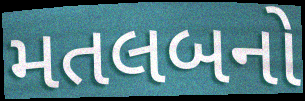
મતલબનો